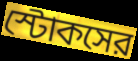
স্টোকসের